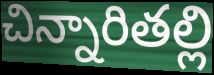
చిన్నారితల్లి